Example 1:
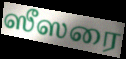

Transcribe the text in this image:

ஸீஸரை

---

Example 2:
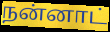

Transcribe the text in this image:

நன்னாட்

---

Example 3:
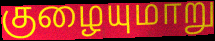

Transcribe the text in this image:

குழையுமாறு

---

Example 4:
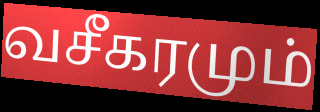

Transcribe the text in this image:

வசீகரமும்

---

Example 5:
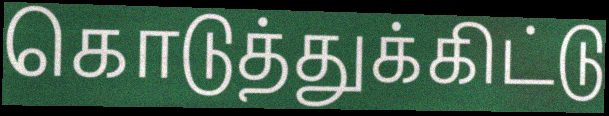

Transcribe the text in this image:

கொடுத்துக்கிட்டு